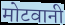
मोटवानी